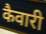
कैवारी